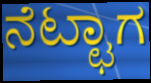
ನೆಟ್ಟಾಗ